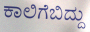
ಕಾಲಿಗೆಬಿದ್ದು